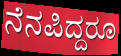
ನೆನಪಿದ್ದರೂ